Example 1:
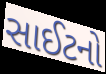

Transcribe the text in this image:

સાઈટનો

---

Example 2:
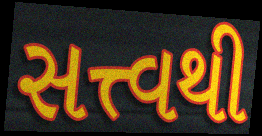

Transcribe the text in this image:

સત્ત્વથી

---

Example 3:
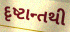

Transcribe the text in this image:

દૃષ્ટાન્તથી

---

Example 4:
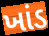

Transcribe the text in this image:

ખાંડ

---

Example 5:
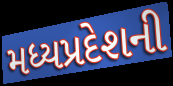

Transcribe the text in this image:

મધ્યપ્રદેશની